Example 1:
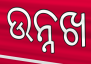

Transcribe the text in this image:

ଉନ୍ନଖ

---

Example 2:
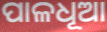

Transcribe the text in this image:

ପାଳଧୂଆ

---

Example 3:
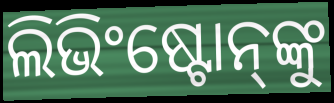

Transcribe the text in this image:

ଲିଭିଂଷ୍ଟୋନ୍‌ଙ୍କୁ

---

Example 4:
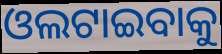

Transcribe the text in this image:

ଓଲଟାଇବାକୁ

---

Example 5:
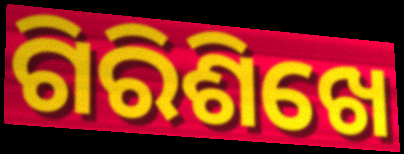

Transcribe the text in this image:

ଗିରିଶିଖେ